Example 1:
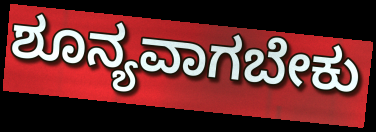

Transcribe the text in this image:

ಶೂನ್ಯವಾಗಬೇಕು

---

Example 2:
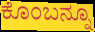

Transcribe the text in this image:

ಕೊಂಬನ್ನೂ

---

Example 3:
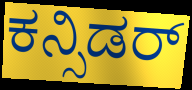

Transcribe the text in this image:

ಕನ್ಸಿಡರ್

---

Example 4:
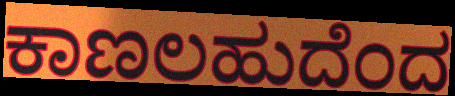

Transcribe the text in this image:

ಕಾಣಲಹುದೆಂದ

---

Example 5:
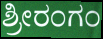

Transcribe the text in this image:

ಶ್ರೀರಂಗಂ